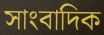
সাংবাদিক